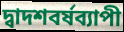
দ্বাদশবর্ষব্যাপী